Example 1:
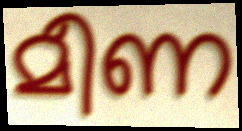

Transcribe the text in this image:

മീണ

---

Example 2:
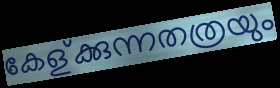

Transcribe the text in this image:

കേള്ക്കുന്നതത്രയും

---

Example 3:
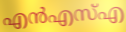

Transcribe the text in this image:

എൻഎസ്എ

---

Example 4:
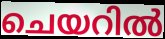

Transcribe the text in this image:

ചെയറിൽ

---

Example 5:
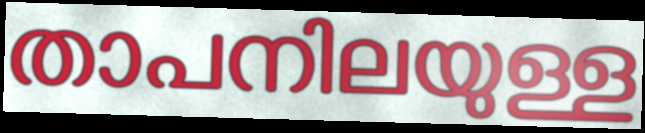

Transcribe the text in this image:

താപനിലയുള്ള